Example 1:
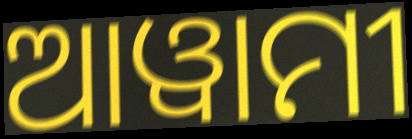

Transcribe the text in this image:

ଆୱାମୀ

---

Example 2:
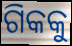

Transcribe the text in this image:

ଗିକକୁ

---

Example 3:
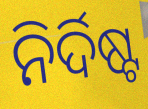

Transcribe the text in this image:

ନିର୍ଦିଷ୍ଟ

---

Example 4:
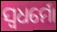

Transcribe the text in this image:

ସ୍ୱଧର୍ମୋ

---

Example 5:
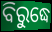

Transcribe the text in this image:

ବିରୁଦ୍ଧେ